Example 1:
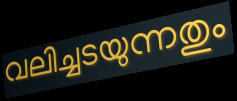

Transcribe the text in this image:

വലിച്ചടയുന്നതും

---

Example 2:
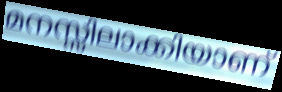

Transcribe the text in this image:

മനസ്സിലാക്കിയാണ്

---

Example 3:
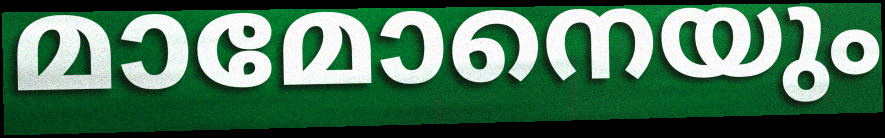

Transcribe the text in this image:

മാമോനെയും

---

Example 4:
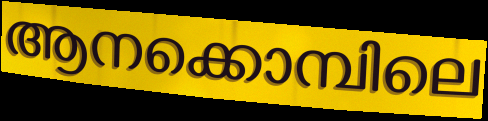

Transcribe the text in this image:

ആനക്കൊമ്പിലെ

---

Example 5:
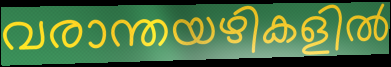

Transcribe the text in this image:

വരാന്തയഴികളിൽ